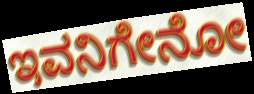
ಇವನಿಗೇನೋ